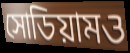
সোডিয়ামও